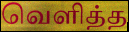
வெளித்த